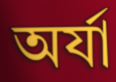
অর্যা